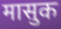
मासुक